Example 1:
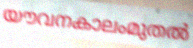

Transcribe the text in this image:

യൗവനകാലംമുതൽ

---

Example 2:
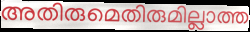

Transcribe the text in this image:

അതിരുമെതിരുമില്ലാത്ത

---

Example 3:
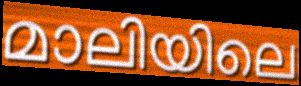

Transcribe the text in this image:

മാലിയിലെ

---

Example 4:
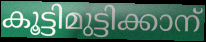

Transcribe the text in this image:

കൂട്ടിമുട്ടിക്കാന്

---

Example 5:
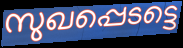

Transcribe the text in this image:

സുഖപ്പെടട്ടെ